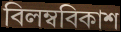
বিলম্ববিকাশ